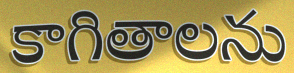
కాగితాలను